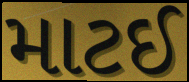
માટઈ